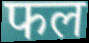
फल